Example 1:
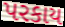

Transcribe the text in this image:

પરકાય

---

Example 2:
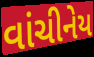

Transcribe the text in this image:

વાંચીનેય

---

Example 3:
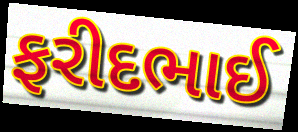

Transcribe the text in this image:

ફરીદભાઈ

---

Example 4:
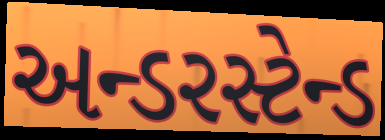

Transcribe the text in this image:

અન્ડરસ્ટેન્ડ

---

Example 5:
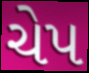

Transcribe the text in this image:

ચેપ